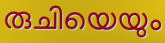
രുചിയെയും